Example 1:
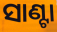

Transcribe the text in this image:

ସାଣ୍ଟା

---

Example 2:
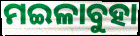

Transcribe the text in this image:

ମଇଳାବୁହା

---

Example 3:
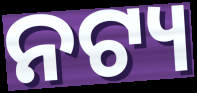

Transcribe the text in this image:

ନଟ୍ୟ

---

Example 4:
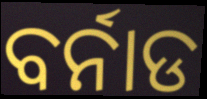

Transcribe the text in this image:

ବର୍ନାଡ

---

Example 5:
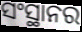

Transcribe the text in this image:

ସଂସ୍ଥାନର